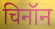
चिनॉन